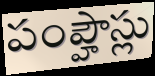
పంప్హౌస్లు